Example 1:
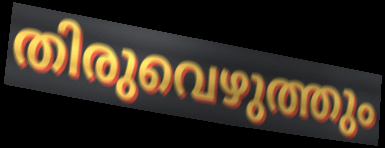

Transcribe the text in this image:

തിരുവെഴുത്തും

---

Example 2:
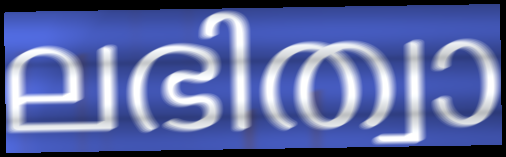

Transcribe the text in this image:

ലഭിത്വാ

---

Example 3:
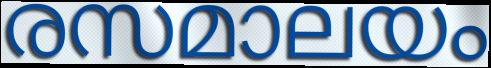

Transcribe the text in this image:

രസമാലയം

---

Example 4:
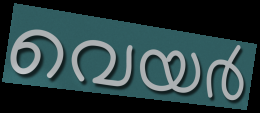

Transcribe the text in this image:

വെയർ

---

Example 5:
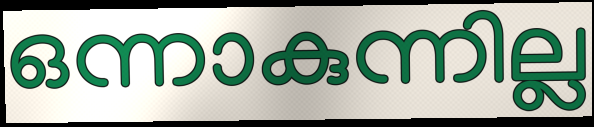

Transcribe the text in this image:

ഒന്നാകുന്നില്ല